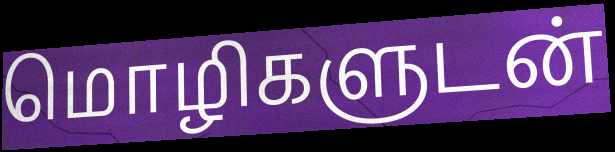
மொழிகளுடன்